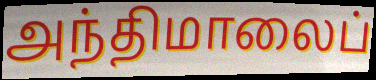
அந்திமாலைப்